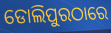
ଡୋଲିପୁରଠାରେ